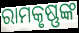
ରାମକୃଷ୍ଣଙ୍କ